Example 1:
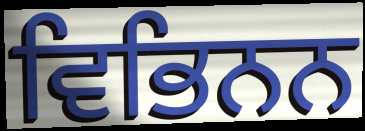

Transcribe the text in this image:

ਵਿਭਿਨਨ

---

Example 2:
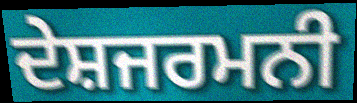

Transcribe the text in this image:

ਦੇਸ਼ਜਰਮਨੀ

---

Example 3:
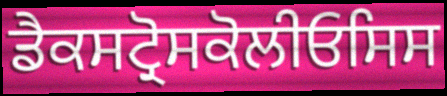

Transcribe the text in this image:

ਡੈਕਸਟ੍ਰੋਸਕੋਲੀਓਸਿਸ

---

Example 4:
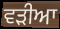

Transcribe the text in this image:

ਵੜੀਆ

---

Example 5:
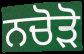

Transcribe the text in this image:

ਨਚੋੜੋ